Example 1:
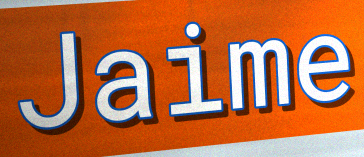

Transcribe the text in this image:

Jaime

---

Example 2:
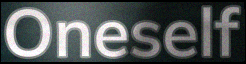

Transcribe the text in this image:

Oneself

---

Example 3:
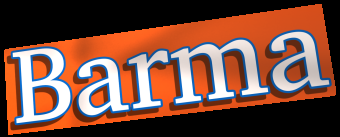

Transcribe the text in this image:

Barma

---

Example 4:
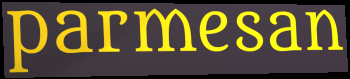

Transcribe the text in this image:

parmesan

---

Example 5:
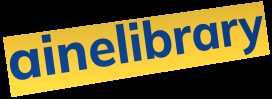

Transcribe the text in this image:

ainelibrary